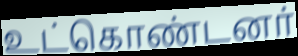
உட்கொண்டனர்